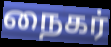
நைகர்